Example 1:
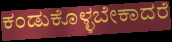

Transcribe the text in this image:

ಕಂಡುಕೊಳ್ಳಬೇಕಾದರೆ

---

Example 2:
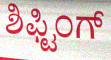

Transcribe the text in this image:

ಶಿಫ್ಟಿಂಗ್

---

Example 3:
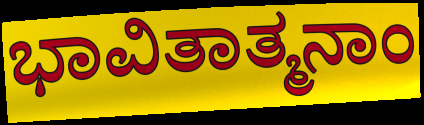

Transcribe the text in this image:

ಭಾವಿತಾತ್ಮನಾಂ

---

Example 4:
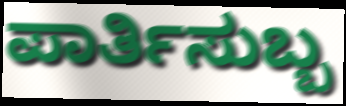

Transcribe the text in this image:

ಪಾರ್ತಿಸುಬ್ಬ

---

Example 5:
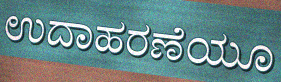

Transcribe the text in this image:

ಉದಾಹರಣೆಯೂ